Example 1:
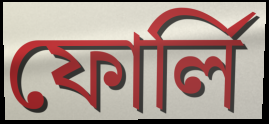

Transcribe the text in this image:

ফোর্লি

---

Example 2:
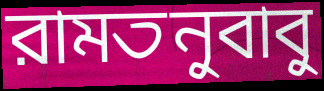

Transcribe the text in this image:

রামতনুবাবু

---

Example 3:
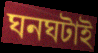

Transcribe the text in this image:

ঘনঘটাই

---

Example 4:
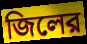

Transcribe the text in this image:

জিলের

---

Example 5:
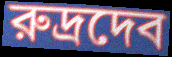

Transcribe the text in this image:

রুদ্রদেব